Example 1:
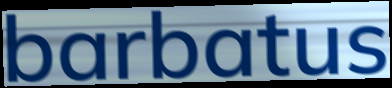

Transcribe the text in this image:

barbatus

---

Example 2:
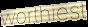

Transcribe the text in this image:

worthiest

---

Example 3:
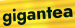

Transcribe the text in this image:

gigantea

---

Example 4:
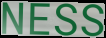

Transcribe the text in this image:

NESS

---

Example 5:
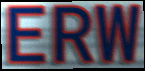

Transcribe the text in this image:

ERW